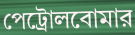
পেট্রোলবোমার